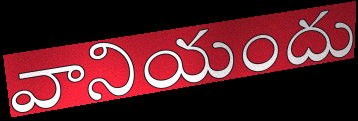
వానియందు